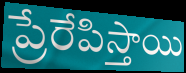
ప్రేరేపిస్తాయి